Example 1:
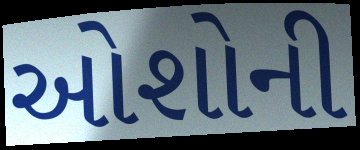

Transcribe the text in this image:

ઓશોની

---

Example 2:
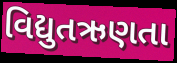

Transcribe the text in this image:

વિદ્યુતઋણતા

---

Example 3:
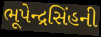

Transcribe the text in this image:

ભૂપેન્દ્રસિંહની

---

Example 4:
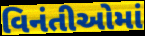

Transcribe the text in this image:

વિનંતીઓમાં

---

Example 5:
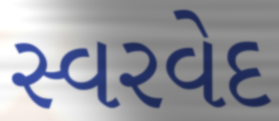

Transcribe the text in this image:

સ્વરવેદ